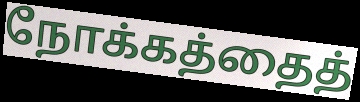
நோக்கத்தைத்